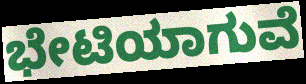
ಭೇಟಿಯಾಗುವೆ